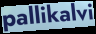
pallikalvi